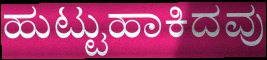
ಹುಟ್ಟುಹಾಕಿದವು